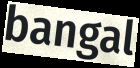
bangal